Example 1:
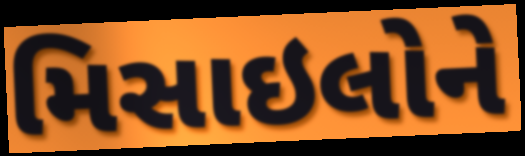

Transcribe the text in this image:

મિસાઇલોને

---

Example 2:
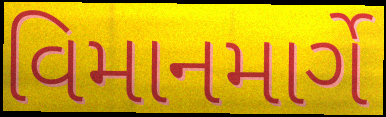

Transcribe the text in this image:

વિમાનમાર્ગે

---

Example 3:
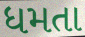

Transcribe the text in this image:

ધમતા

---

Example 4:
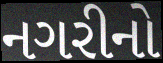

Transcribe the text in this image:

નગરીનો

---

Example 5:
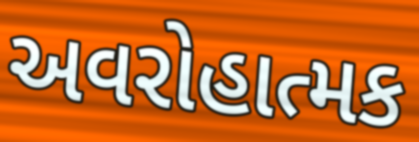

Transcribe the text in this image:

અવરોહાત્મક